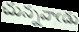
చున్నవాఁడు